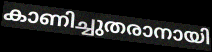
കാണിച്ചുതരാനായി